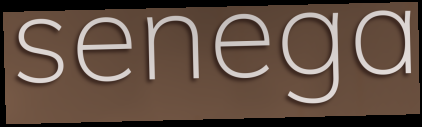
senega